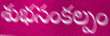
శుభసంకల్పం